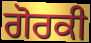
ਗੋਰਕੀ